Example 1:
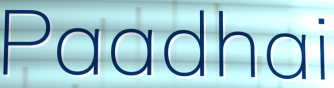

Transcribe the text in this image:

Paadhai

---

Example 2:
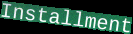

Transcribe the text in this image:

Installment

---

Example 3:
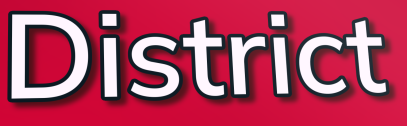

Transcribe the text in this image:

District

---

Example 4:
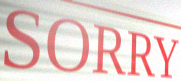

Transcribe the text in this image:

SORRY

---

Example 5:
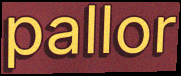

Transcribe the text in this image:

pallor